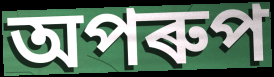
অপৰুপ